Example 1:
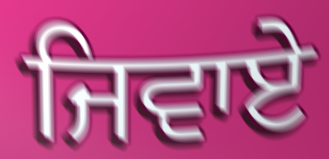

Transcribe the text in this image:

ਜਿਵਾਏ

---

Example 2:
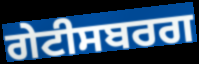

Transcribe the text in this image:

ਗੇਟੀਸਬਰਗ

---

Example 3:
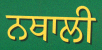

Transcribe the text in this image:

ਨਥਾਲੀ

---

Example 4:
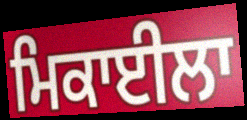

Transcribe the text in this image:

ਮਿਕਾਈਲਾ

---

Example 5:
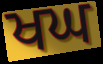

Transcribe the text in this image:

ਖਘ